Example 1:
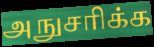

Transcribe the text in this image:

அநுசரிக்க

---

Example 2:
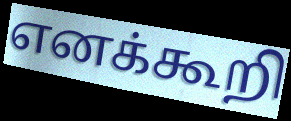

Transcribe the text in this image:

எனக்கூறி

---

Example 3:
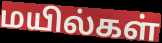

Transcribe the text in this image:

மயில்கள்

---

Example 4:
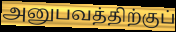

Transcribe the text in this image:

அனுபவத்திற்குப்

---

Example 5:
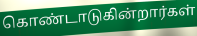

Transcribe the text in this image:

கொண்டாடுகின்றார்கள்